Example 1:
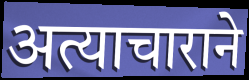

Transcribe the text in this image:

अत्याचाराने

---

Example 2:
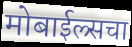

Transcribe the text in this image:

मोबाईल्सचा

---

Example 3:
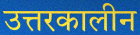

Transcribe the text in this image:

उत्तरकालीन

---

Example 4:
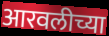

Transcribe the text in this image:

आरवलीच्या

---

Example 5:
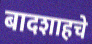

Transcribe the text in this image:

बादशाहचे